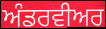
ਅੰਡਰਵੀਅਰ